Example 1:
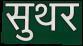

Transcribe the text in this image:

सुथर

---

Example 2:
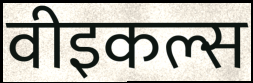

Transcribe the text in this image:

वीइकल्स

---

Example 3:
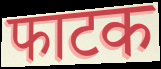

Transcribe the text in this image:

फाटक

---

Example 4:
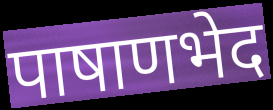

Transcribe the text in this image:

पाषाणभेद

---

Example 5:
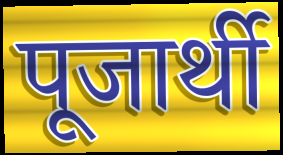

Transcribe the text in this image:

पूजार्थी